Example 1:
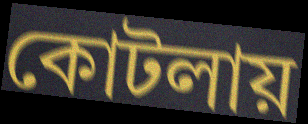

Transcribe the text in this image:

কোটলায়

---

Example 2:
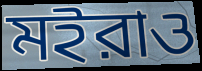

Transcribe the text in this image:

মইরাও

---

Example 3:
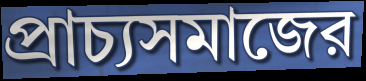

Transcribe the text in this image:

প্রাচ্যসমাজের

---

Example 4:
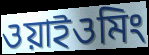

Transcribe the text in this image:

ওয়াইওমিং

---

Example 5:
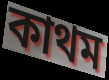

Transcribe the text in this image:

কাথম